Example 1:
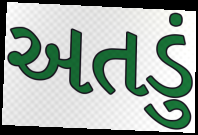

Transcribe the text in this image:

અતડું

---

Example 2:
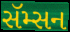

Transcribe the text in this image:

સૅમ્સન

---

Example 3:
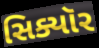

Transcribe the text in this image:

સિક્યૉર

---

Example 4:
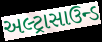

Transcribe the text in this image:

અલ્ટ્રાસાઉન્ડ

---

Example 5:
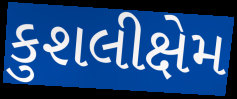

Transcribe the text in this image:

કુશલીક્ષેમ